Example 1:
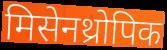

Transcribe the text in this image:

मिसेनथ्रोपिक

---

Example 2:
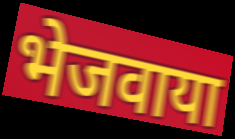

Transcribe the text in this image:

भेजवाया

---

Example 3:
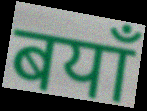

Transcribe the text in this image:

बयाँ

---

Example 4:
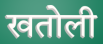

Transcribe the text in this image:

खतोली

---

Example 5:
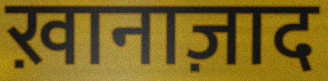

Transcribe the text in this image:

ख़ानाज़ाद